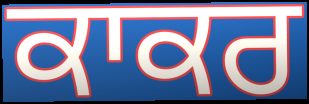
ਕਾਕਰ